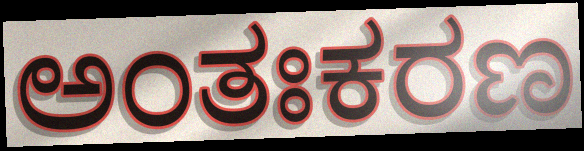
ಅಂತಃಕರಣ